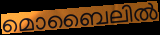
മൊബൈലിൽ